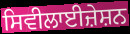
ਸਿਵੀਲਾਈਜ਼ੇਸ਼ਨ